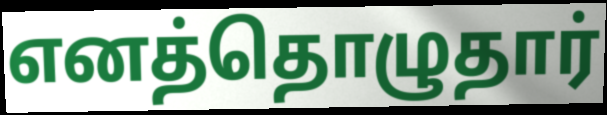
எனத்தொழுதார்